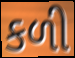
કળી